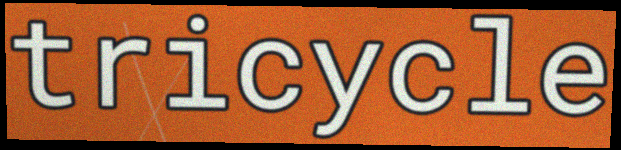
tricycle